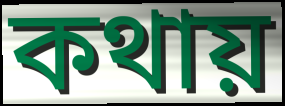
কথায়